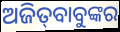
ଅଜିତ୍‍ବାବୁଙ୍କର